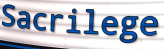
Sacrilege